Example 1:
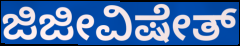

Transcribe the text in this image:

ಜಿಜೀವಿಷೇತ್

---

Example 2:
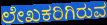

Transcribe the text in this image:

ಲೇಖಕರಿಗಿರುವ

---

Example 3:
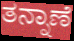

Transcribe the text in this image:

ತನ್ನಾಣೆ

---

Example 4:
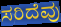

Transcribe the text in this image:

ಸರಿದೆವು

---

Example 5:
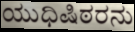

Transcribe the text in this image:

ಯುಧಿಷಿಠರನು